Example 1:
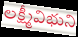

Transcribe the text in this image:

లక్ష్మీవిభుని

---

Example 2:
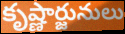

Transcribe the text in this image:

కృష్ణార్జునులు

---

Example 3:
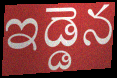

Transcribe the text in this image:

ఇడ్డెన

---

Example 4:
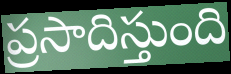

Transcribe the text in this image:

ప్రసాదిస్తుంది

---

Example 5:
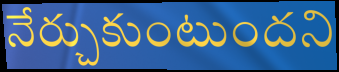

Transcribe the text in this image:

నేర్చుకుంటుందని